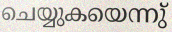
ചെയ്യുകയെന്നു്